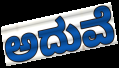
ಅದುವೆ